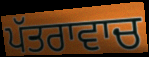
ਪੱਤਰਾਵਾਚ